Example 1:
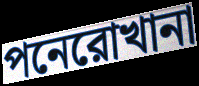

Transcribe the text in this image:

পনেরোখানা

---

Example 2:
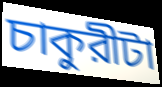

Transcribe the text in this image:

চাকুরীটা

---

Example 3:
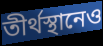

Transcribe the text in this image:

তীর্থস্থানেও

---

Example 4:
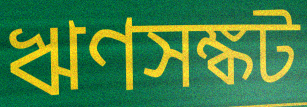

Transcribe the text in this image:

ঋণসঙ্কট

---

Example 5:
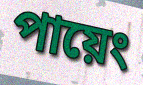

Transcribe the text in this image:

পায়েং